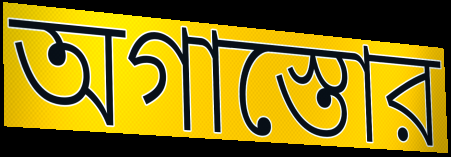
অগাস্তোর